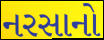
નરસાનો